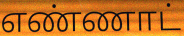
எண்ணாட்